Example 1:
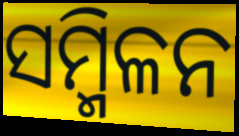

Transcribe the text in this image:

ସମ୍ମିଳନ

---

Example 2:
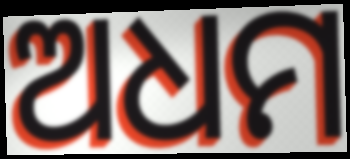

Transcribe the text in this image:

ଅଧମ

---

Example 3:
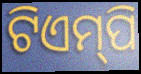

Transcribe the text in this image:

ଟିଏମ୍‌ପି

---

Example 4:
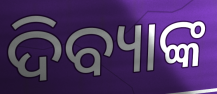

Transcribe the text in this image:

ଦିବ୍ୟାଙ୍କ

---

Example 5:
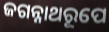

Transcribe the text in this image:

ଜଗନ୍ନାଥରୂପେ